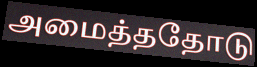
அமைத்ததோடு